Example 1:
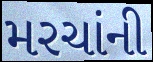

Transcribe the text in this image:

મરચાંની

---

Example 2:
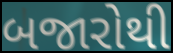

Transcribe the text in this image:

બજારોથી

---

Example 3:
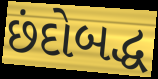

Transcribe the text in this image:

છંદોબદ્ધ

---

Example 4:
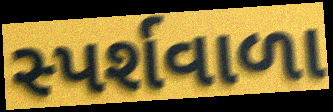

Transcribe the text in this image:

સ્પર્શવાળા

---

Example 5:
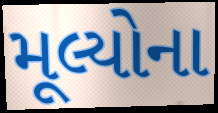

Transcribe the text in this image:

મૂલ્યોના